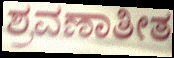
ಶ್ರವಣಾತೀತ